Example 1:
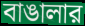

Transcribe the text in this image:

বাঙালার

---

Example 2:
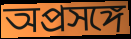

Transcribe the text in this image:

অপ্রসঙ্গে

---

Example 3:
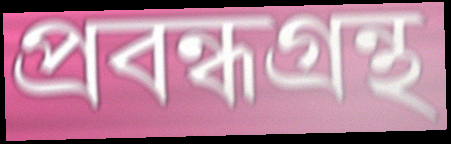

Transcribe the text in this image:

প্রবন্ধগ্রন্থ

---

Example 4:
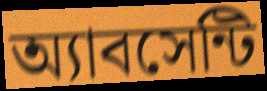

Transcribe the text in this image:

অ্যাবসেন্টি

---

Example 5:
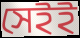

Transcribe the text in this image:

সেইই